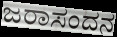
ಜರಾಸಂದನ